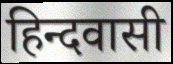
हिन्दवासी